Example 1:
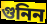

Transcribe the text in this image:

গুনিন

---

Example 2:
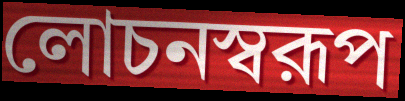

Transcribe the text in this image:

লোচনস্বরূপ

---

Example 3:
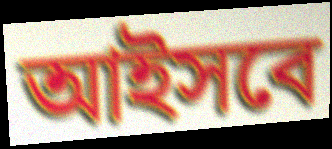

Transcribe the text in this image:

আইসবে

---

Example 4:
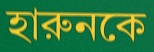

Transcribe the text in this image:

হারুনকে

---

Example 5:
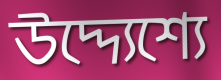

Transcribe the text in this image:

উদ্দ্যেশ্যে